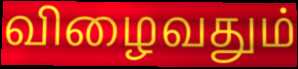
விழைவதும்